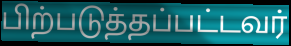
பிற்படுத்தப்பட்டவர்